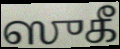
ஸுகீ